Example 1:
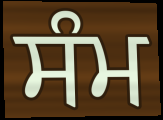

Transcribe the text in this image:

ਸੰਮ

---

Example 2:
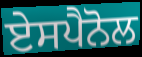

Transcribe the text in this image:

ਏਸਪੈਨੋਲ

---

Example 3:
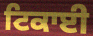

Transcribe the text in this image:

ਟਿਕਾਈ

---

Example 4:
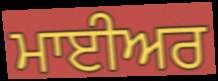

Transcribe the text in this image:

ਮਾਈਅਰ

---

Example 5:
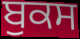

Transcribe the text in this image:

ਬੁਕਸ